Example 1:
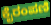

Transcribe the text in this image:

ಕೈರಂಪಣಿ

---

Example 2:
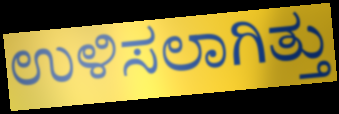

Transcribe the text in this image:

ಉಳಿಸಲಾಗಿತ್ತು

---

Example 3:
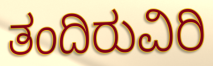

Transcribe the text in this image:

ತಂದಿರುವಿರಿ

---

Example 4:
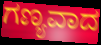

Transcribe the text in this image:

ಗಣ್ಯವಾದ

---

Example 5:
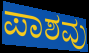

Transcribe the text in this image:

ಪಾಶವು